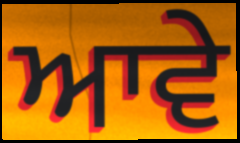
ਆਵੇ